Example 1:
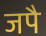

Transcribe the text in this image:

जपै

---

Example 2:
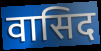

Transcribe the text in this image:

वासिद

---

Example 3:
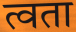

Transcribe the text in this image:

त्वता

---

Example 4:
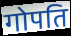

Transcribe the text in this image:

गोपति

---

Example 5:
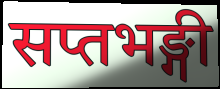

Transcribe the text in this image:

सप्तभङ्गी